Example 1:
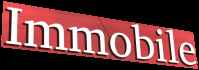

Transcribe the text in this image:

Immobile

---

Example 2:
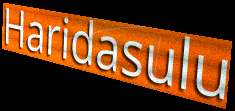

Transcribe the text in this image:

Haridasulu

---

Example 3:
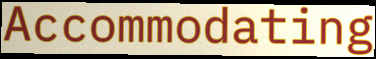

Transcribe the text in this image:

Accommodating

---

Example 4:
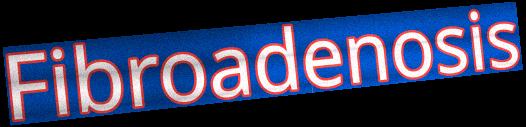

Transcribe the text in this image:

Fibroadenosis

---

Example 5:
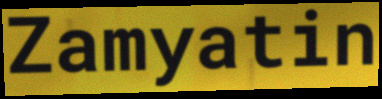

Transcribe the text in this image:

Zamyatin